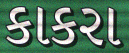
કાકરા